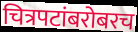
चित्रपटांबरोबरच